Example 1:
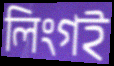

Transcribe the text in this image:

লিংগই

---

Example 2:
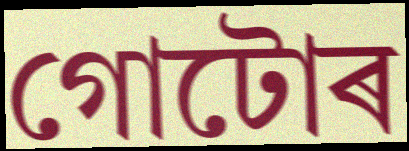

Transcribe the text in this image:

গোটোৰ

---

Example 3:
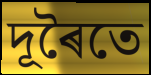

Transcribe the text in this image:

দূৰৈতে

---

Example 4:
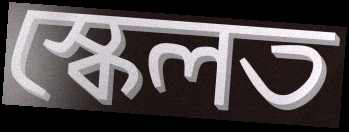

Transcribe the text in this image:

স্কেলত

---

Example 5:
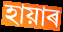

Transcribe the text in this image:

হায়াৰ